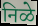
निळे